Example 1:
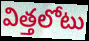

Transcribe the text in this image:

విత్తలోటు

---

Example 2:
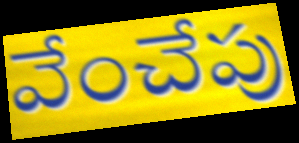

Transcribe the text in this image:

వేంచేపు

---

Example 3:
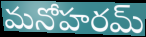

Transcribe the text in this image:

మనోహరమ్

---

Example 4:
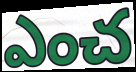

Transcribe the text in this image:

ఎంచ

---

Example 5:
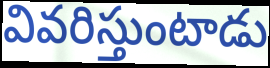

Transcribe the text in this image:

వివరిస్తుంటాడు